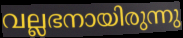
വല്ലഭനായിരുന്നു